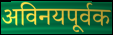
अविनयपूर्वक